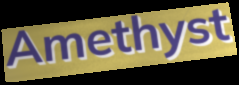
Amethyst